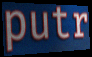
putr